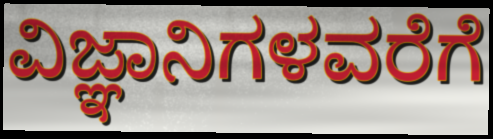
ವಿಜ್ಞಾನಿಗಳವರೆಗೆ